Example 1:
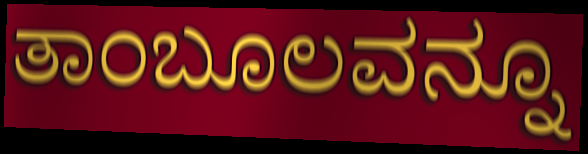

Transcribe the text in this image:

ತಾಂಬೂಲವನ್ನೂ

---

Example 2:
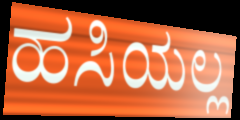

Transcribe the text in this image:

ಹಸಿಯಲ್ಲ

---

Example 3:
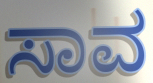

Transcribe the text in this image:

ಸಾವ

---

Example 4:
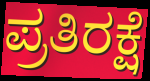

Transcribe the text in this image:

ಪ್ರತಿರಕ್ಷೆ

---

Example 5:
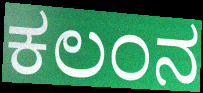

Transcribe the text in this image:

ಕಲಂನ